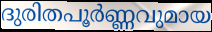
ദുരിതപൂർണ്ണവുമായ